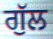
ਗੁੱਲ